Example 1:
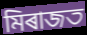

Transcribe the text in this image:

মিৰাজত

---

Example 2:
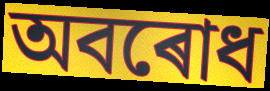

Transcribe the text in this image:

অবৰোধ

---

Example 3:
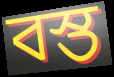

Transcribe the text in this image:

বস্ত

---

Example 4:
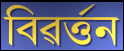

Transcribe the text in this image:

বিৱৰ্ত্তন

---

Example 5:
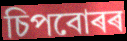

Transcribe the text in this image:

চিপবোৰৰ